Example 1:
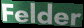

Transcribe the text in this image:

Felder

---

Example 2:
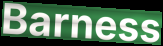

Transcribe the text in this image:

Barness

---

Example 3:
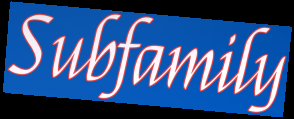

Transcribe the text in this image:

Subfamily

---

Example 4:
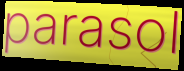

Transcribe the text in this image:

parasol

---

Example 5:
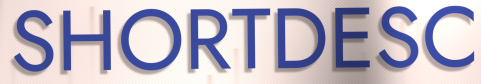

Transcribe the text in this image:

SHORTDESC